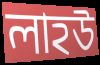
লাহউ